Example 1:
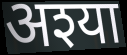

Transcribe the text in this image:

अश्या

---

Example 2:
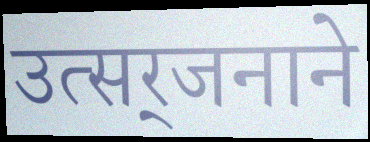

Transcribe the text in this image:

उत्सर्जनाने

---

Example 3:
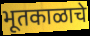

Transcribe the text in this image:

भूतकाळाचे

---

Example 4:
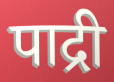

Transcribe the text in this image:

पाद्री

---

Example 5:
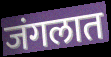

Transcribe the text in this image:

जंगलात